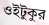
ওইটুকুর